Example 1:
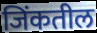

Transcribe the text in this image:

जिंकतील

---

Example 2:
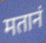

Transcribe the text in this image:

मतानं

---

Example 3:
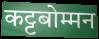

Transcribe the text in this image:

कट्टबोम्मन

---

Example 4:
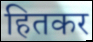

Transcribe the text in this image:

हितकर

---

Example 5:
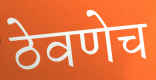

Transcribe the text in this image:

ठेवणेच